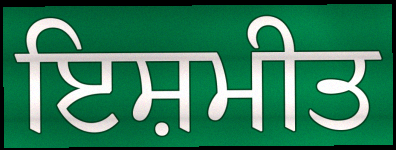
ਇਸ਼ਮੀਤ